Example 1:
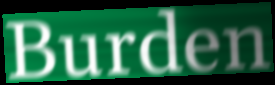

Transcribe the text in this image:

Burden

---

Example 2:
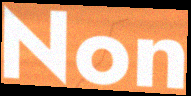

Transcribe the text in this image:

Non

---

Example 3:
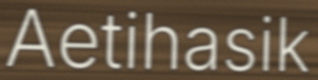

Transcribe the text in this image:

Aetihasik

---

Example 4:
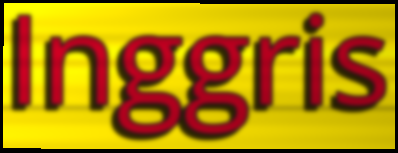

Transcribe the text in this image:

Inggris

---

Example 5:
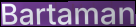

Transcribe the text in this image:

Bartaman